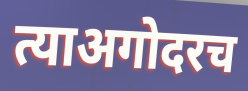
त्याअगोदरच